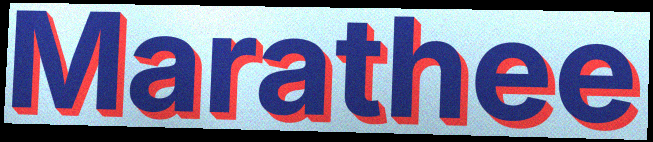
Marathee